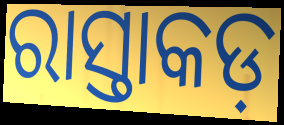
ରାସ୍ତାକଡ଼